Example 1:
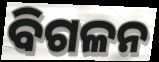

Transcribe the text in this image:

ବିଗଳନ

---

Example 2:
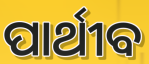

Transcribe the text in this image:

ପାର୍ଥୀବ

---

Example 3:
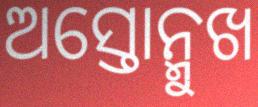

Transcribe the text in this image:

ଅସ୍ତୋନ୍ମୁଖ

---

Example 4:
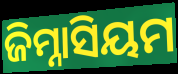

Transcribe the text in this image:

ଜିମ୍ନାସିୟମ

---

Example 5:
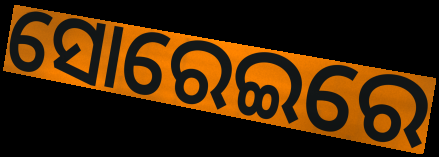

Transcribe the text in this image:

ସୋରେଇରେ